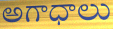
అగాధాలు